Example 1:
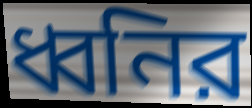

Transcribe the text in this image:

ধ্বনির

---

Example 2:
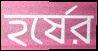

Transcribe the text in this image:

হর্ষের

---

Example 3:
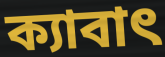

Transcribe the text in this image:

ক্যাবাৎ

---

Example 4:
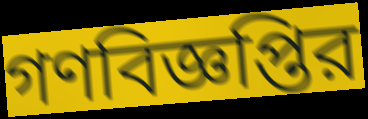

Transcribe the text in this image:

গণবিজ্ঞপ্তির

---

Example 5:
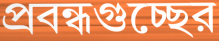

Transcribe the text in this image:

প্রবন্ধগুচ্ছের